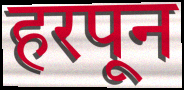
हरपून